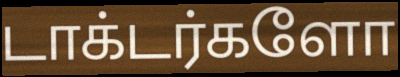
டாக்டர்களோ